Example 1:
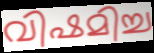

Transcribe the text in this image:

വിഷമിച്ച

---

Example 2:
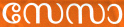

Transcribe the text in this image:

സേസാ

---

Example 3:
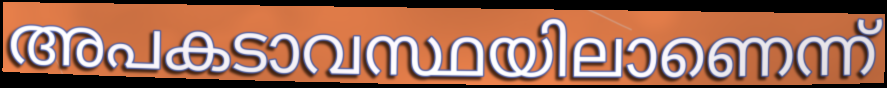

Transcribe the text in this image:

അപകടാവസ്ഥയിലാണെന്ന്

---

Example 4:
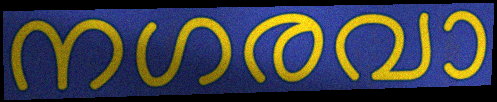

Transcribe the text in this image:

നഗരവാ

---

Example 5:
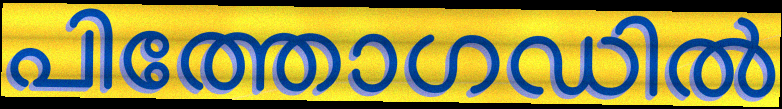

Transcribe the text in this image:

പിത്തോഗഡിൽ